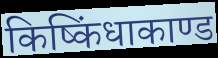
किष्किंधाकाण्ड